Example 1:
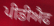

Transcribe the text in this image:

ਪੀਡੀਐਫ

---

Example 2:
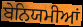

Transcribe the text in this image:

ਬੇਨਿਯਮੀਆਂ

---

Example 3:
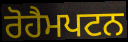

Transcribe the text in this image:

ਰੋਹੈਮਪਟਨ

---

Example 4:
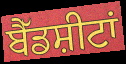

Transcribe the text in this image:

ਬੈੱਡਸ਼ੀਟਾਂ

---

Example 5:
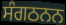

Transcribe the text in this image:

ਸੰਗਠਨਨ